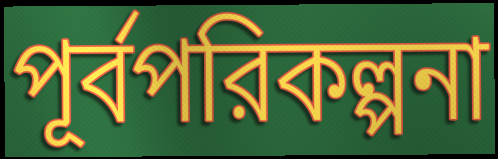
পূর্বপরিকল্পনা